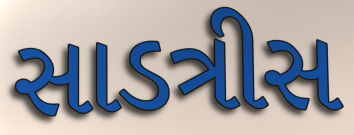
સાડત્રીસ